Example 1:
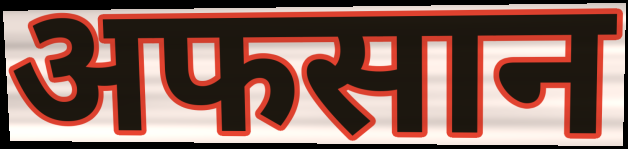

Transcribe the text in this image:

अफसान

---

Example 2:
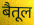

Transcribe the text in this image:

बैतूल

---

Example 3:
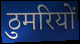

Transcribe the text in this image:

ठुमरियों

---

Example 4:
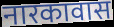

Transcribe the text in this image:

नारकावास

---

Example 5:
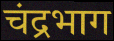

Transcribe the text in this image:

चंद्रभाग